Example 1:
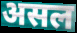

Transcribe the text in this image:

असल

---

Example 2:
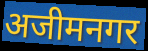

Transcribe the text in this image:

अजीमनगर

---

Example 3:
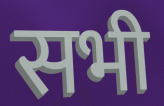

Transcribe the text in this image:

सभी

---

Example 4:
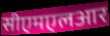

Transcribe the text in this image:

सीएमएलआर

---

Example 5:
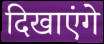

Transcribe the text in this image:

दिखाएंगे